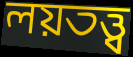
লয়তত্ত্ব